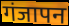
गंजापन